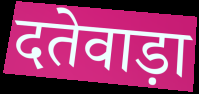
दतेवाड़ा